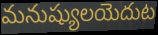
మనుష్యులయెదుట